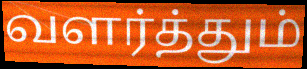
வளர்த்தும்